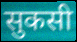
सुकसी